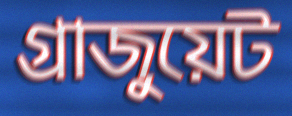
গ্রাজুয়েট